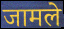
जामले